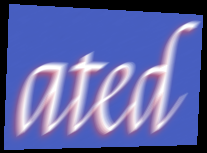
ated